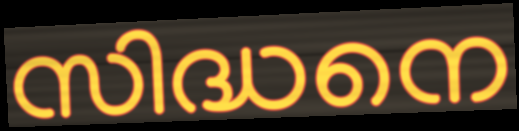
സിദ്ധനെ